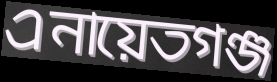
এনায়েতগঞ্জ